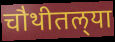
चौथीतल्या